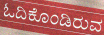
ಓದಿಕೊಂಡಿರುವ